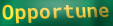
Opportune